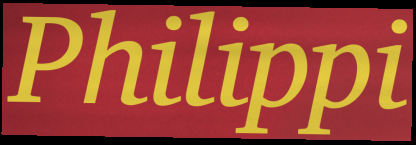
Philippi